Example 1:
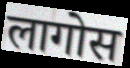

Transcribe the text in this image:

लागोस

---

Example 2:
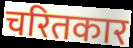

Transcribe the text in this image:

चरितकार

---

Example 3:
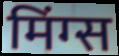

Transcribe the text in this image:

मिंग्स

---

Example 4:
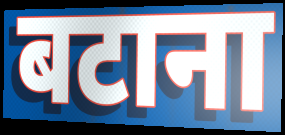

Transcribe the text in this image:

बटाना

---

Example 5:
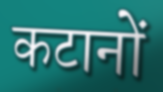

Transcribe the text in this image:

कटानों